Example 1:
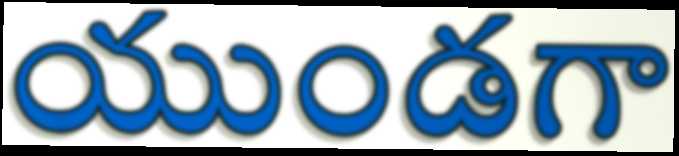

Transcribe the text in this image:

యుండగా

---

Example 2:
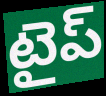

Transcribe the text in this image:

టైప్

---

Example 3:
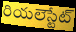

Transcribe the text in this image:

రియలెస్టేట్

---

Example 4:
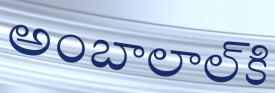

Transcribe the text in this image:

అంబాలాల్‌కి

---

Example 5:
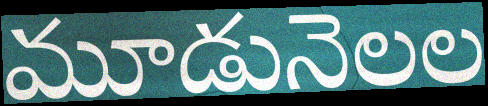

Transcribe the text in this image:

మూడునెలల